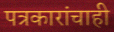
पत्रकारांचाही